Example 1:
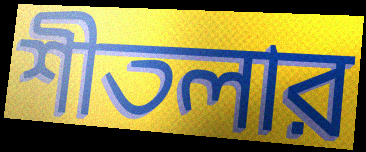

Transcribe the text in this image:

শীতলার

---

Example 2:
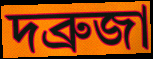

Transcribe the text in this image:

দব্রুজা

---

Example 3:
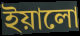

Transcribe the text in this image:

ইয়ালো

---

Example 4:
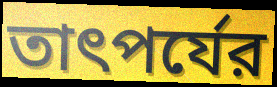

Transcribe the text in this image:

তাৎপর্যের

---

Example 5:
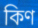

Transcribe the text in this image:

কিণ